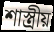
শাস্ত্ৰীয়